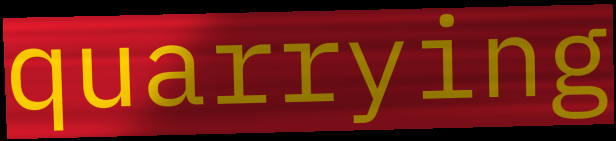
quarrying